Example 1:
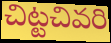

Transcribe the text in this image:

చిట్టచివరి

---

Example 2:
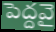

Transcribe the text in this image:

పెద్దవై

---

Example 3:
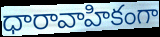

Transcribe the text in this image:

ధారావాహికంగా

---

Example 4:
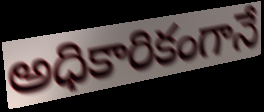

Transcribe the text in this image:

అధికారికంగానే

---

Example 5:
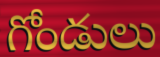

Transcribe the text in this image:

గోండులు